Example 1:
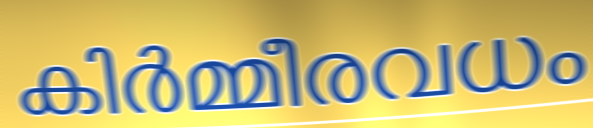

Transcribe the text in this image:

കിർമ്മീരവധം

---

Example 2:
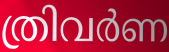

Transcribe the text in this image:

ത്രിവർണ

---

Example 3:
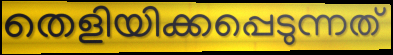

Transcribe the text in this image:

തെളിയിക്കപ്പെടുന്നത്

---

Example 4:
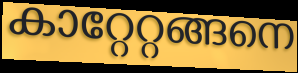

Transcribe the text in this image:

കാറ്റേറ്റങ്ങനെ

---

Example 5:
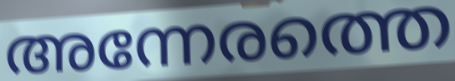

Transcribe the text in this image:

അന്നേരത്തെ